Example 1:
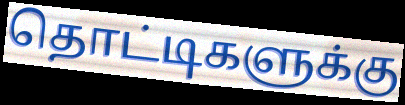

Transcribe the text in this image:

தொட்டிகளுக்கு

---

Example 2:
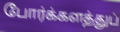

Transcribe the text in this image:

போர்க்களத்துப்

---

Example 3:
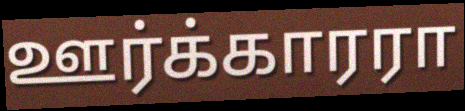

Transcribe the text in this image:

ஊர்க்காரரா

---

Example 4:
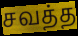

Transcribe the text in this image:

சவத்த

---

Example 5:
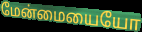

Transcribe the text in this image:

மேன்மையையோ